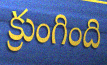
క్రుంగింది